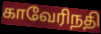
காவேரிநதி